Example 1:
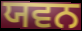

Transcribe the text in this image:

ਯਵਨ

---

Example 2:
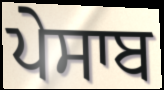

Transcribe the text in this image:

ਪੇਸਾਬ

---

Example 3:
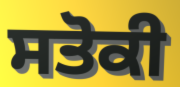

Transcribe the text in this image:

ਸਤੋਕੀ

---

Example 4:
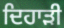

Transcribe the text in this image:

ਦਿਹਾੜੀ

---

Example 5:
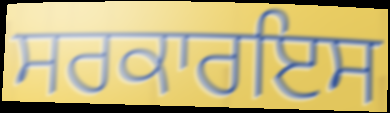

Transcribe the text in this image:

ਸਰਕਾਰਇਸ